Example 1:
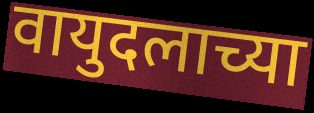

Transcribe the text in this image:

वायुदलाच्या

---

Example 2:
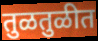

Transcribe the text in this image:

तुळतुळीत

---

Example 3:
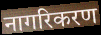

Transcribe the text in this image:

नागरिकरण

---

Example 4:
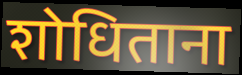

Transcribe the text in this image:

शोधिताना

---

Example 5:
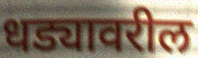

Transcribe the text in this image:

धड्यावरील